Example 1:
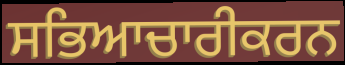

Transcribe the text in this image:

ਸਭਿਆਚਾਰੀਕਰਨ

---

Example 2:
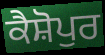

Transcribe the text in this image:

ਕੈਸ਼ੋਪੁਰ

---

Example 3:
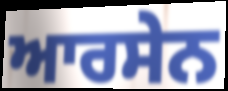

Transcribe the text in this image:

ਆਰਸੇਨ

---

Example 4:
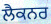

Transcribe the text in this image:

ਲੈਕਨਰ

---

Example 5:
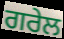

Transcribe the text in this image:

ਗਰੇਲ